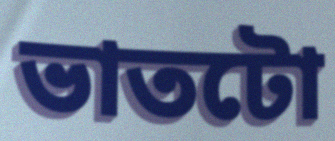
ভাতটো